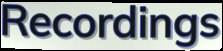
Recordings